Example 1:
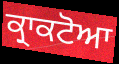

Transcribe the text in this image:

ਕ੍ਰਾਕਟੋਆ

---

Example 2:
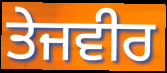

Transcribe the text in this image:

ਤੇਜਵੀਰ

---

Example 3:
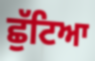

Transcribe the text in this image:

ਛੁੱਟਿਆ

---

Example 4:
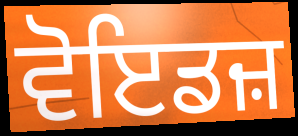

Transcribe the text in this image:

ਵੋਇਡਜ਼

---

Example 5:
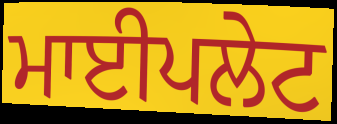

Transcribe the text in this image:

ਮਾਈਪਲੇਟ